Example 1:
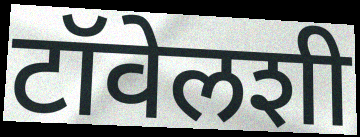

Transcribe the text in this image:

टॉवेलशी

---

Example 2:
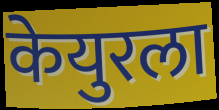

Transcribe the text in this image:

केयुरला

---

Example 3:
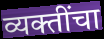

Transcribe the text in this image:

व्यक्‍तींचा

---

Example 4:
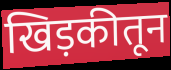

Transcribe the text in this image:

खिड़कीतून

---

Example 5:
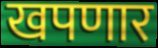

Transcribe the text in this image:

खपणार